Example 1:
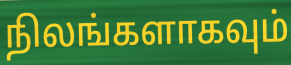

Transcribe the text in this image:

நிலங்களாகவும்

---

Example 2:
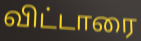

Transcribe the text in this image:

விட்டாரை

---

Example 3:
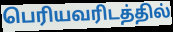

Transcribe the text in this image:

பெரியவரிடத்தில்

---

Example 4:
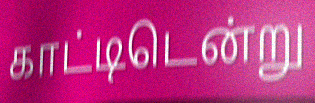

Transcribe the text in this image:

காட்டிடென்று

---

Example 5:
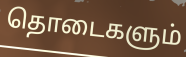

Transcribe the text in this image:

தொடைகளும்